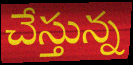
చేస్తున్న